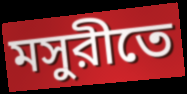
মসুরীতে